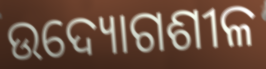
ଉଦ୍ୟୋଗଶୀଳ